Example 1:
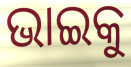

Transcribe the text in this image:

ଭାଇକୁ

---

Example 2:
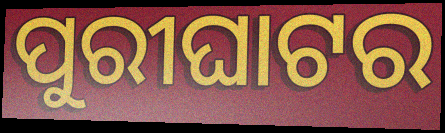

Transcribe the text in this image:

ପୁରୀଘାଟର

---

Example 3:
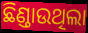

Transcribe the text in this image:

ଛିଣ୍ଡାଉଥିଲା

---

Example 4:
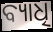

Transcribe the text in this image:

ବ୍ୟାଧି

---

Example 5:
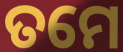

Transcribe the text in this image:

ତମେ